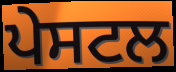
ਪੇਸਟਲ